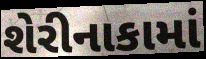
શેરીનાકામાં